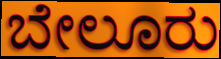
ಬೇಲೂರು